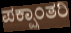
ಪಕ್ಷಾಂತರಿ